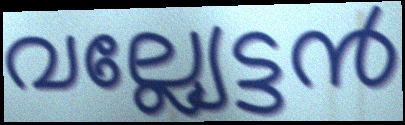
വല്ല്യേട്ടൻ